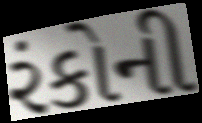
રંકોની